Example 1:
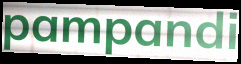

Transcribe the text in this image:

pampandi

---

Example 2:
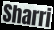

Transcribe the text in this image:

Sharri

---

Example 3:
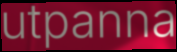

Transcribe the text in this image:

utpanna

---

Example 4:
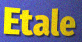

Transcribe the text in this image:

Etale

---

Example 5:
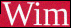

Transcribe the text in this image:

Wim